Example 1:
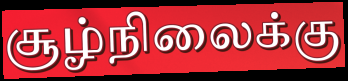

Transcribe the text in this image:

சூழ்நிலைக்கு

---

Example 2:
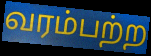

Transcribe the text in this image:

வரம்பற்ற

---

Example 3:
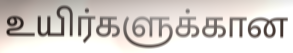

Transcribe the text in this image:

உயிர்களுக்கான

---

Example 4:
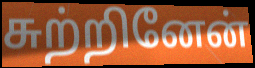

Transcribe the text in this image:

சுற்றினேன்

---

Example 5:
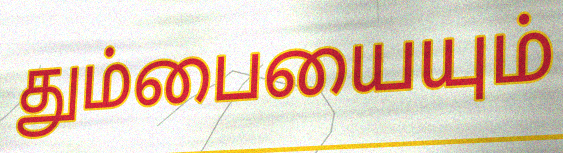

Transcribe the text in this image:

தும்பையையும்